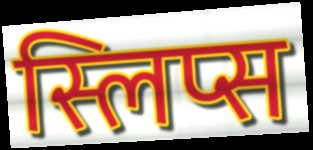
स्लिप्स